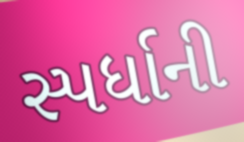
સ્પર્ધાની